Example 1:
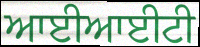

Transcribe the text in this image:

ਆਈਆਈਟੀ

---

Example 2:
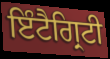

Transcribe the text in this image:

ਇੰਟੈਗ੍ਰਿਟੀ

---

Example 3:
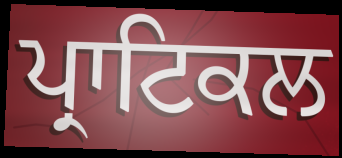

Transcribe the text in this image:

ਪ੍ਰਾਟਿਕਲ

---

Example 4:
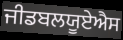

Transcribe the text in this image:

ਜੀਡਬਲਯੂਏਐਸ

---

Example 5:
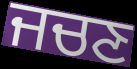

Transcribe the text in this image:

ਜਚਣ